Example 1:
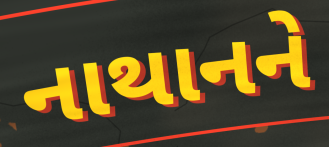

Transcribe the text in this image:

નાથાનને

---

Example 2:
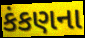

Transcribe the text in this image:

કંકણના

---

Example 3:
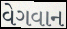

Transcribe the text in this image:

વેગવાન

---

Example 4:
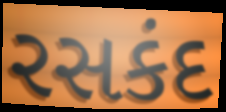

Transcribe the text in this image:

રસકંદ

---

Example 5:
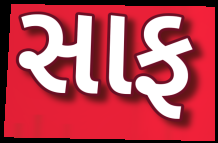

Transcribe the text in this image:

સાફ